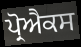
ਪ੍ਰੋਐਕਸ